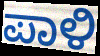
ಪಾಳಿ